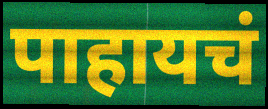
पाहायचं